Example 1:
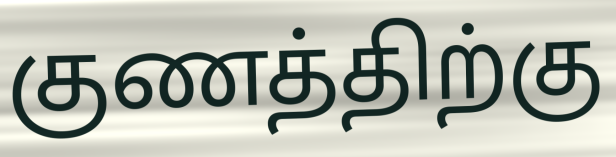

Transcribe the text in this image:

குணத்திற்கு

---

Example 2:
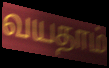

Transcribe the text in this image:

வயதாம்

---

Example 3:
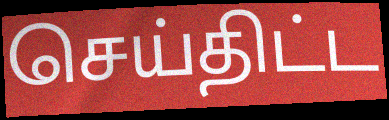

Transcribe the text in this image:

செய்திட்ட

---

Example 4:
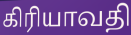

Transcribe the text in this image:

கிரியாவதி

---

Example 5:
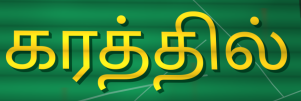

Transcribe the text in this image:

கரத்தில்